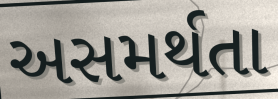
અસમર્થતા